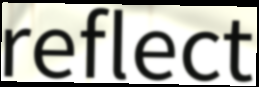
reflect